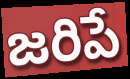
జరిపే